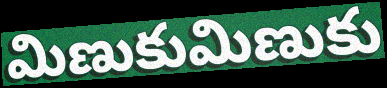
మిణుకుమిణుకు